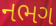
નભગ